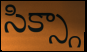
సిక్స్గా